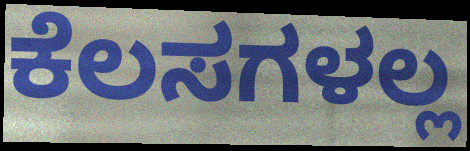
ಕೆಲಸಗಳಲ್ಲ